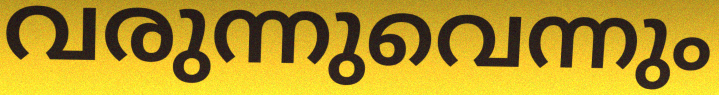
വരുന്നുവെന്നും